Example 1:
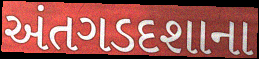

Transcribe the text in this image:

અંતગડદશાના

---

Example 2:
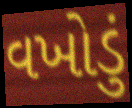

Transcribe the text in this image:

વખોડું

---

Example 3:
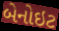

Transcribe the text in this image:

બેનોઇટ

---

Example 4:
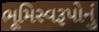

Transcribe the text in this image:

ભૂમિસ્વરૂપોનું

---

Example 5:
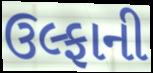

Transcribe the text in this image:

ઉલ્ફાની